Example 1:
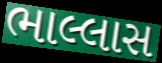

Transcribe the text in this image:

ભાલ્લાસ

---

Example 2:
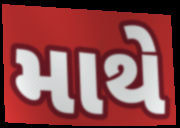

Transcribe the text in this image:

માથે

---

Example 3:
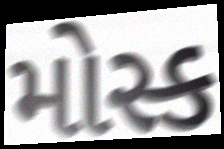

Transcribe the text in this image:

મોસ્ક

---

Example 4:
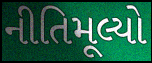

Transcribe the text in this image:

નીતિમૂલ્યો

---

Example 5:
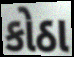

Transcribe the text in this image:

કોઠા